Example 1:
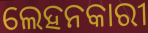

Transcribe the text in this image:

ଲେହନକାରୀ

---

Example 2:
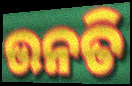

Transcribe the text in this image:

ଉନତି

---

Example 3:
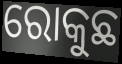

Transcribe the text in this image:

ରୋକୁଛ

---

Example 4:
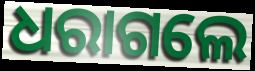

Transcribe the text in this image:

ଧରାଗଲେ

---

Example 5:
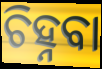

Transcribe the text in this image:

ଚିହ୍ନବା